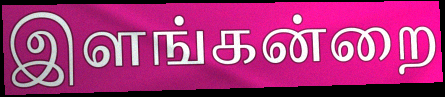
இளங்கன்றை